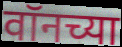
वॉनच्या